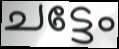
ചട്ടേം